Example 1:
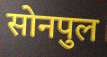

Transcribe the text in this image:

सोनपुल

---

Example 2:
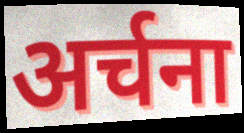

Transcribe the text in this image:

अर्चना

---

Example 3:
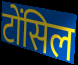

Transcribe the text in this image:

टोंसिल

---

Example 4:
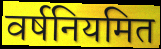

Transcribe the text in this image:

वर्षनियमित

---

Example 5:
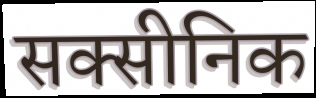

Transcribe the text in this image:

सक्सीनिक